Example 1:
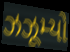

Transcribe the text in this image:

ઝઝૂમ્યો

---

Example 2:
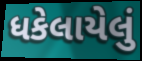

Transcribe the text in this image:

ધકેલાયેલું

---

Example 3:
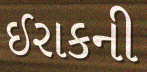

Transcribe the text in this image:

ઈરાકની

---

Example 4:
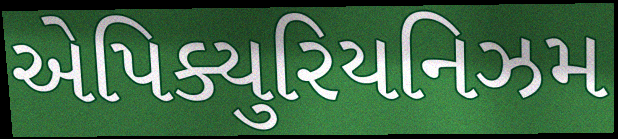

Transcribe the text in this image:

એપિક્યુરિયનિઝમ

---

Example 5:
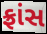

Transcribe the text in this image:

ફ્રાંસ